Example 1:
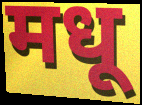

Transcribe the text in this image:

मधू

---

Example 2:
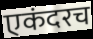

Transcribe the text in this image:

एकंदरच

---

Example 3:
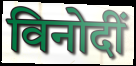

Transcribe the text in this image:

विनोदीं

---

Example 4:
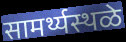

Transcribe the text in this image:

सामर्थ्यस्थळे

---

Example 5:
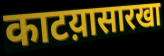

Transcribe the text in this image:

काटय़ासारखा